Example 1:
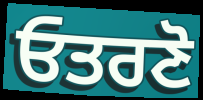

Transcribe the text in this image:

ਓਤਰਣੋ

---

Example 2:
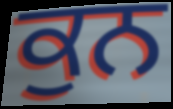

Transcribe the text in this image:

ਕੁਨ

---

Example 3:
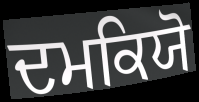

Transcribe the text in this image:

ਦਮਕਿਯੋ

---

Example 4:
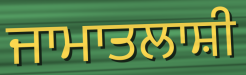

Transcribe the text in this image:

ਜਾਮਾਤਲਾਸ਼ੀ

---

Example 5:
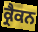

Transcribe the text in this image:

ਕ੍ਰੈਕਨ